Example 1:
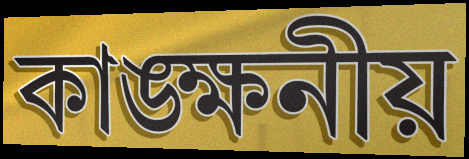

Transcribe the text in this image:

কাঙ্ক্ষনীয়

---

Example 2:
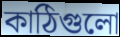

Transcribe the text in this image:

কাঠিগুলো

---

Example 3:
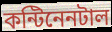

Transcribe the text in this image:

কন্টিনেনটাল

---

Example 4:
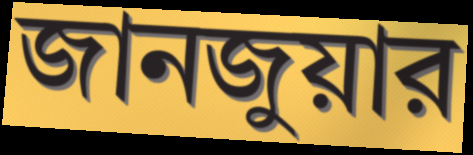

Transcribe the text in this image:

জানজুয়ার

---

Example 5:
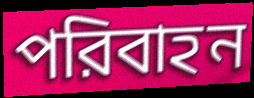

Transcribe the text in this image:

পরিবাহন